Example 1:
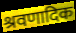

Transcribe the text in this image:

श्रवणादिक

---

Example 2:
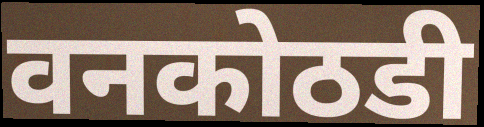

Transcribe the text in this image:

वनकोठडी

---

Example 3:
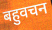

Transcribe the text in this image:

बहुवचन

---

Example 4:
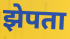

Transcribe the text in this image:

झेपता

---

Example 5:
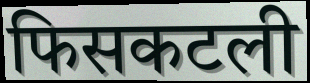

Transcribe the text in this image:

फिसकटली